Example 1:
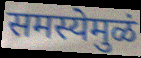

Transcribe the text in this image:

समस्येमुळं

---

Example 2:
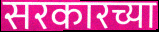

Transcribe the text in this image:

सरकारच्या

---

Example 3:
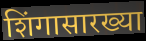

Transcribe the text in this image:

शिंगासारख्या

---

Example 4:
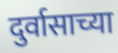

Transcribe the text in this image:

दुर्वासाच्या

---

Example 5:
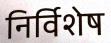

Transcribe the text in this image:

निर्विशेष